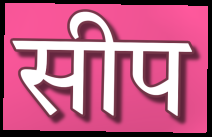
सीप